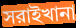
সরাইখানা